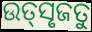
ଉତ୍‌ସୃଜତୁ